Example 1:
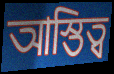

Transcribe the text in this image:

আস্তিত্ব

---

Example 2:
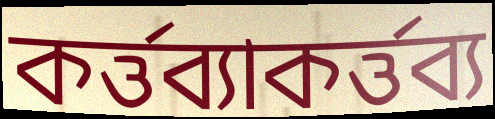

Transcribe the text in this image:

কর্ত্তব্যাকর্ত্তব্য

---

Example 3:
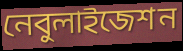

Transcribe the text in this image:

নেবুলাইজেশন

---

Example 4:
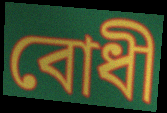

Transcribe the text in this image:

বোধী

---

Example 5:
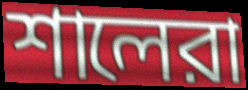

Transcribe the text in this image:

শালেরা